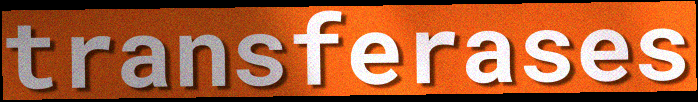
transferases